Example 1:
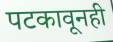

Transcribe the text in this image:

पटकावूनही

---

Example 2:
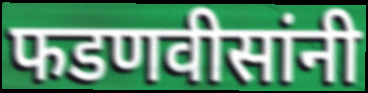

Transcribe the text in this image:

फडणवीसांनी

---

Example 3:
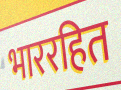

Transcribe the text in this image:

भाररहित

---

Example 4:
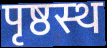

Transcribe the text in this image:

पृष्ठस्थ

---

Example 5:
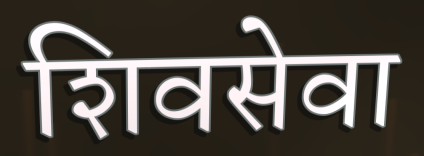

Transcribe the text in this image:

शिवसेवा